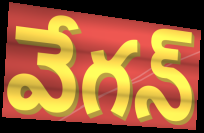
వేగన్